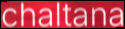
chaltana